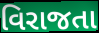
વિરાજતા